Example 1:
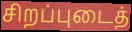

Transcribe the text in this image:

சிறப்புடைத்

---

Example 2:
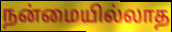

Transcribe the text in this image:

நன்மையில்லாத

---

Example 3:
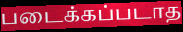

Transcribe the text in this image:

படைக்கப்படாத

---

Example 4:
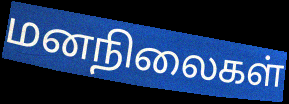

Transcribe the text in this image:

மனநிலைகள்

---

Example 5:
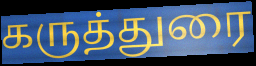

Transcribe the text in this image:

கருத்துரை